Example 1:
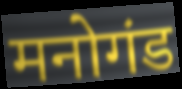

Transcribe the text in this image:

मनोगंड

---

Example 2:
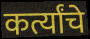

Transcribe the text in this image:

कर्त्यांचे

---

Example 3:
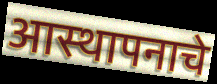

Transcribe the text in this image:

आस्थापनाचे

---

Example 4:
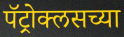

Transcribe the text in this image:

पॅट्रोक्लसच्या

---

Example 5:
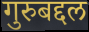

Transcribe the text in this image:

गुरुबद्दल